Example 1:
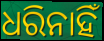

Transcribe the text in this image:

ଧରିନାହିଁ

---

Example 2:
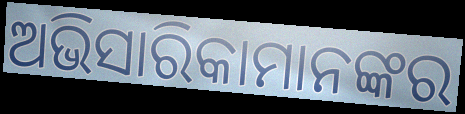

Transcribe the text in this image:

ଅଭିସାରିକାମାନଙ୍କର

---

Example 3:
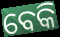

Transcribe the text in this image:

ବେକି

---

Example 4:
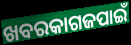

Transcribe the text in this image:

ଖବରକାଗଜପାଇଁ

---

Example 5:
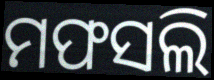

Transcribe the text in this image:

ମଫସଲି